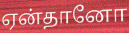
ஏன்தானோ